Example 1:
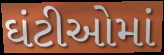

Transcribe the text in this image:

ઘંટીઓમાં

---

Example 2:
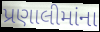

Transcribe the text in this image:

પ્રણાલીમાંના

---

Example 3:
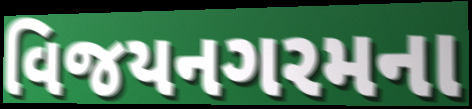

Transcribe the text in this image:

વિજયનગરમના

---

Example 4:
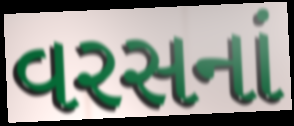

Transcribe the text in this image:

વરસનાં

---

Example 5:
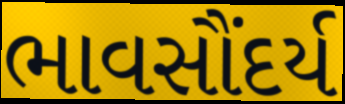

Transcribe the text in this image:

ભાવસૌંદર્ય